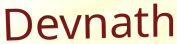
Devnath